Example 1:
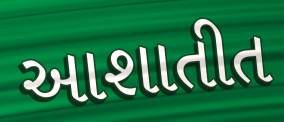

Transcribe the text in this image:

આશાતીત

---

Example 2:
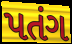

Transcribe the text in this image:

પતંગ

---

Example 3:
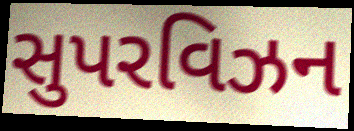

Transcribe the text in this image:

સુપરવિઝન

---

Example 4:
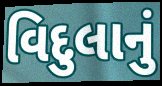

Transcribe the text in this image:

વિદુલાનું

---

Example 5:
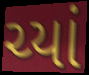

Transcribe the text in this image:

ચ્યાં